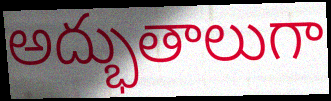
అద్భుతాలుగా